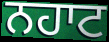
ਨਹਾਟ